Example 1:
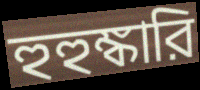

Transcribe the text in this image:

হুহুঙ্কারি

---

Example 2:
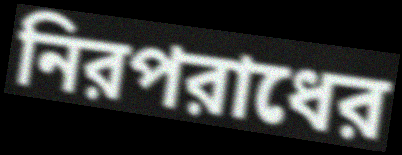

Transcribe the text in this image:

নিরপরাধের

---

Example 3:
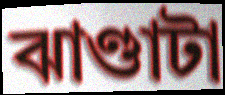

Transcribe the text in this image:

ঝাণ্ডাটা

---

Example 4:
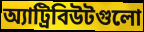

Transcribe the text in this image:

অ্যাট্রিবিউটগুলো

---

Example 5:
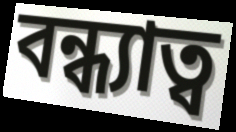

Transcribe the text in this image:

বন্ধ্যাত্ব